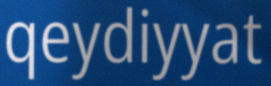
qeydiyyat